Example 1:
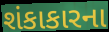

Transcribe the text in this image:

શંકાકારના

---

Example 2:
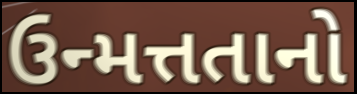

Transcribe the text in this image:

ઉન્મત્તતાનો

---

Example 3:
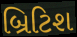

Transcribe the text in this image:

બ્રિટિશ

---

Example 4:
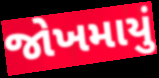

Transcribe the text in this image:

જોખમાયું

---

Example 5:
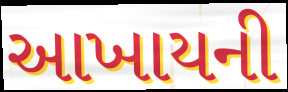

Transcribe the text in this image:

આખાયની